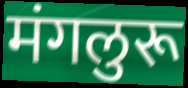
मंगलुरू